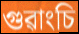
গুৱাংচি